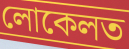
লোকেলত